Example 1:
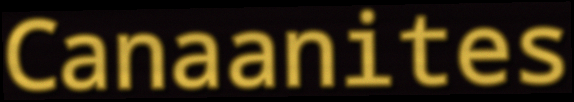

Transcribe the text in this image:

Canaanites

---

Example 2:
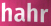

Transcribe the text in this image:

hahr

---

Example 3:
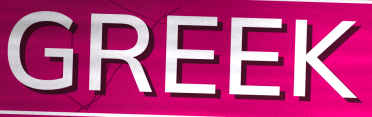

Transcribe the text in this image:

GREEK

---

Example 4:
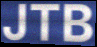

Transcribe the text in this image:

JTB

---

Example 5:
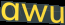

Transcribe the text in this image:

awu